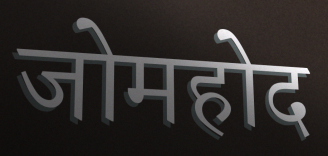
जोमहोद